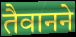
तैवानने